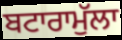
ਬਟਾਰਾਮੁੱਲਾ